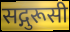
सद्गुरूसी